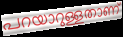
പറയാറുള്ളതാണ്